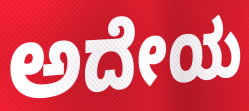
ಅದೇಯ